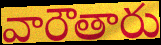
వారౌతారు